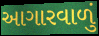
આગારવાળું